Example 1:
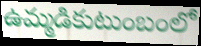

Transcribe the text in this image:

ఉమ్మడికుటుంబంలో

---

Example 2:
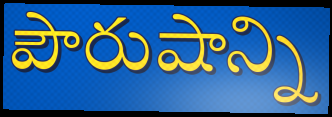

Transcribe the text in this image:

పౌరుషాన్ని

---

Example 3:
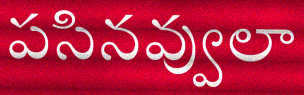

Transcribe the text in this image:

పసినవ్వులా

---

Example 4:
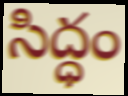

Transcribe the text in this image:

సిద్ధం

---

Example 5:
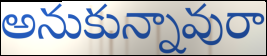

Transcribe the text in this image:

అనుకున్నావురా